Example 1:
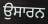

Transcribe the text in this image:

ਉਸਾਰਨ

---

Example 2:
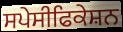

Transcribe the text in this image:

ਸਪੇਸੀਫਿਕੇਸ਼ਨ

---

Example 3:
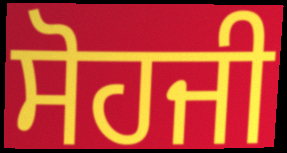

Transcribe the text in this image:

ਸੋਹਜੀ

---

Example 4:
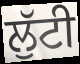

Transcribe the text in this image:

ਲੁੱਟੀ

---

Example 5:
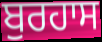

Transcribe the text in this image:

ਬੁਰਹਾਸ